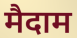
मैदाम